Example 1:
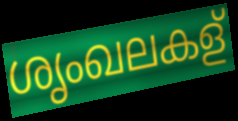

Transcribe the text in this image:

ശൃംഖലകള്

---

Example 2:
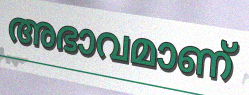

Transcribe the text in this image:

അഭാവമാണ്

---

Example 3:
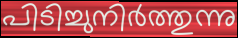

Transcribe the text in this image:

പിടിച്ചുനിർത്തുന്നു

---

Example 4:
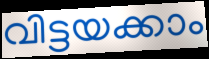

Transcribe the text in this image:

വിട്ടയക്കാം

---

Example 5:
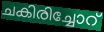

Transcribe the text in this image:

ചകിരിച്ചോറ്